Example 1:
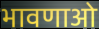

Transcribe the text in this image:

भावणाओ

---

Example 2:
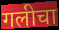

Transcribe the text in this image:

गलीचा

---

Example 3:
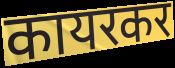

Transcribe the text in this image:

कायरकर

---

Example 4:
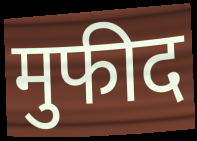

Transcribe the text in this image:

मुफीद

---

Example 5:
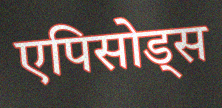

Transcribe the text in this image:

एपिसोड्स